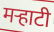
मर्‍हाटी